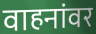
वाहनांवर